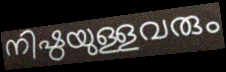
നിഷ്ഠയുള്ളവരും